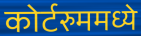
कोर्टरुममध्ये